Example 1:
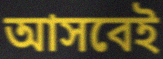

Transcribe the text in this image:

আসবেই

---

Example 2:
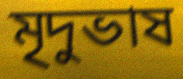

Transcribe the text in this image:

মৃদুভাষ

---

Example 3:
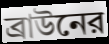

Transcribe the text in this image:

ব্রাউনের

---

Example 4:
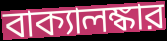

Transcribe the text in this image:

বাক্যালঙ্কার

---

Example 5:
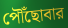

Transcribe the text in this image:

পৌঁছোবার